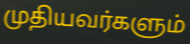
முதியவர்களும்